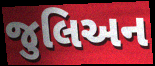
જુલિઅન